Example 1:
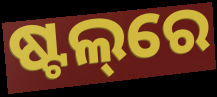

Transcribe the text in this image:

ଷ୍ଟଲ୍‌ରେ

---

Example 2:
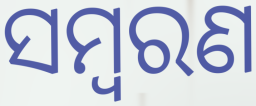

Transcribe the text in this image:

ସମ୍ୱରଣ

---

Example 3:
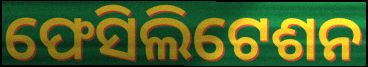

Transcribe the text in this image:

ଫେସିଲିଟେଶନ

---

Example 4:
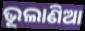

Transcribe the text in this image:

ଭୂଲାଣିଆ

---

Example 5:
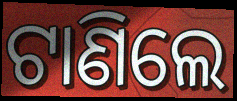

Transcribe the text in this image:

ଟାଣିଲେ